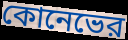
কোনেভের